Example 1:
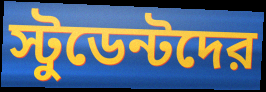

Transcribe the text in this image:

স্টুডেন্টদের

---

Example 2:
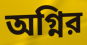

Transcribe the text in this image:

অগ্নির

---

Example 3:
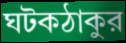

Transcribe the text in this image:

ঘটকঠাকুর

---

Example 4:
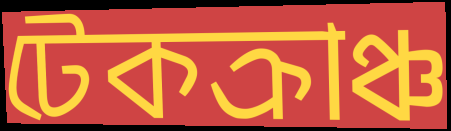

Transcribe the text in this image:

টেকক্রাঞ্চ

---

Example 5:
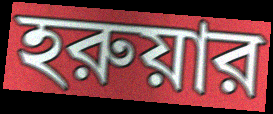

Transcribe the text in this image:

হরুয়ার